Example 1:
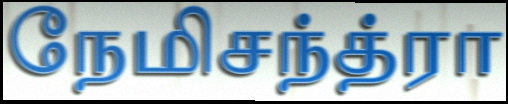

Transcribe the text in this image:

நேமிசந்த்ரா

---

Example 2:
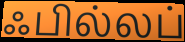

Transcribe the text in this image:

ஃபில்லப்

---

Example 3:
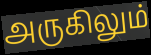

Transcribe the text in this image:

அருகிலும்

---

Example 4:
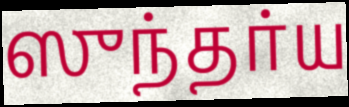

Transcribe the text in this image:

ஸுந்தர்ய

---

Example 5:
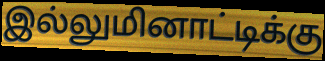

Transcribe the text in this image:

இல்லுமினாட்டிக்கு